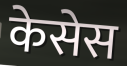
केसेस